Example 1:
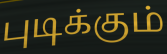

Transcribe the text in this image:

புடிக்கும்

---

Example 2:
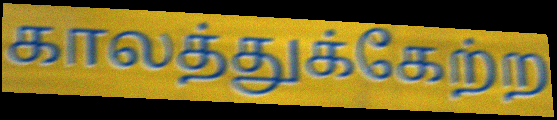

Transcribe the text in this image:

காலத்துக்கேற்ற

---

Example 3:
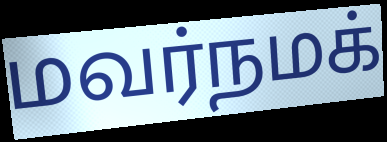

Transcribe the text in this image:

மவர்நமக்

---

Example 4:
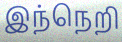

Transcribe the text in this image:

இந்நெறி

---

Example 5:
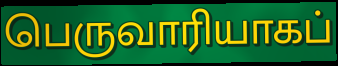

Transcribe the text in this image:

பெருவாரியாகப்